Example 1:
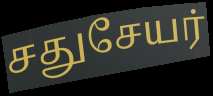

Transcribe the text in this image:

சதுசேயர்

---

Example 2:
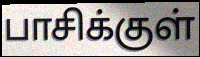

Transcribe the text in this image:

பாசிக்குள்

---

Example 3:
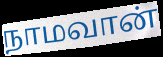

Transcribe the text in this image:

நாமவான்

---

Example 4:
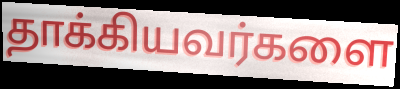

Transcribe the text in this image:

தாக்கியவர்களை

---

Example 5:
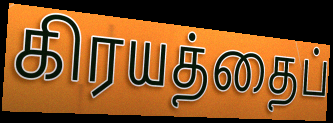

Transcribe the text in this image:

கிரயத்தைப்